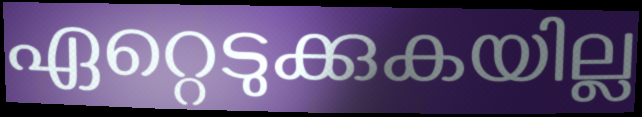
ഏറ്റെടുക്കുകയില്ല